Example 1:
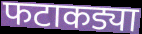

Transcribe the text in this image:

फटाकड्या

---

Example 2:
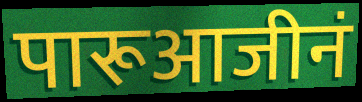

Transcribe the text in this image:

पारूआजीनं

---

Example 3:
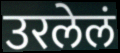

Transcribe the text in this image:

उरलेलं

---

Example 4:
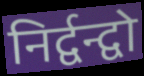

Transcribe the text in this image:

निर्द्वन्द्वो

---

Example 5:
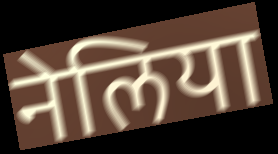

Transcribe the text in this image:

नेलिया